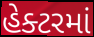
હેક્ટરમાં